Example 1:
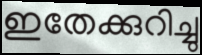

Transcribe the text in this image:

ഇതേക്കുറിച്ചു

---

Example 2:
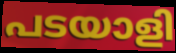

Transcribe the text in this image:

പടയാളി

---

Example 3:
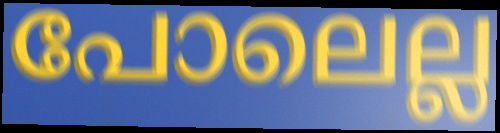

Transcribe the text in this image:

പോലെല്ല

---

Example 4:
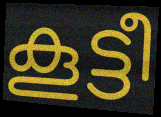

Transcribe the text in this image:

കൂട്ടീ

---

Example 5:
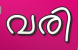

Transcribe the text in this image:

വരി